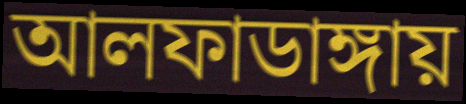
আলফাডাঙ্গায়